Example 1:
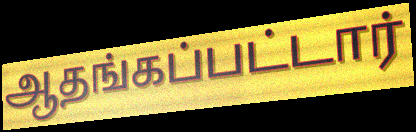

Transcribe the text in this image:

ஆதங்கப்பட்டார்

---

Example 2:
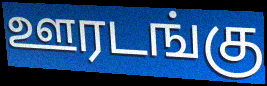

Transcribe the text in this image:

ஊரடங்கு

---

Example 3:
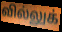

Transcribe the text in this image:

வில்லுக்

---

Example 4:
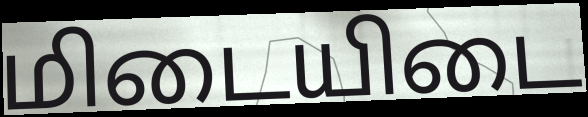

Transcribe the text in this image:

மிடையிடை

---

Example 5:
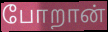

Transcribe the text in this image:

போறான்